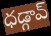
ధడ్గావ్